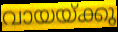
വായയ്ക്കു